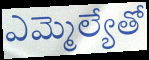
ఎమ్మెల్యేతో